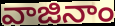
వాజినాం